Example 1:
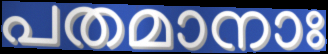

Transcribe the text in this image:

പതമാനാഃ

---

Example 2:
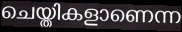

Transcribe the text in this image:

ചെയ്തികളാണെന്ന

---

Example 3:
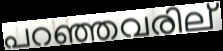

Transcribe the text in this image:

പറഞ്ഞവരില്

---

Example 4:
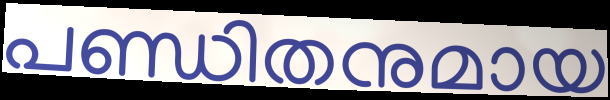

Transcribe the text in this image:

പണ്ഡിതനുമായ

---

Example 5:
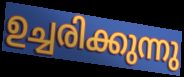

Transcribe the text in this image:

ഉച്ചരിക്കുന്നു